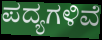
ಪದ್ಯಗಳಿವೆ